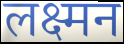
लक्ष्मन